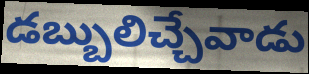
డబ్బులిచ్చేవాడు